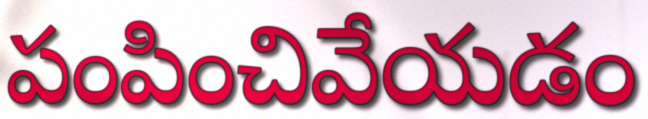
పంపించివేయడం